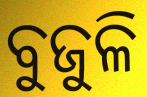
ବୁଜୁଳି